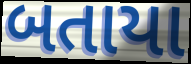
બતાયા